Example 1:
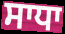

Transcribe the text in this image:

ਸਾਧਾ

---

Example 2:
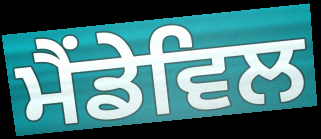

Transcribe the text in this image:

ਮੈਂਡੇਵਿਲ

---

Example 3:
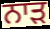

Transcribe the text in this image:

ਨਾੜ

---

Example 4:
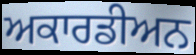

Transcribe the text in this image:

ਅਕਾਰਡੀਅਨ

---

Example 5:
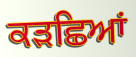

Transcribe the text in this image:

ਕੜਛਿਆਂ